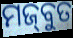
ମଜ୍‌ବୁତ